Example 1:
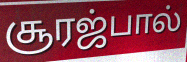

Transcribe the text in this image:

சூரஜ்பால்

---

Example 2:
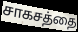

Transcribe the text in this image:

சாகசத்தை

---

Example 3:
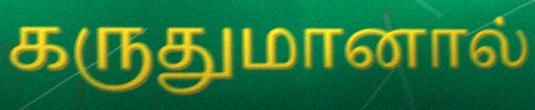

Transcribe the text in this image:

கருதுமானால்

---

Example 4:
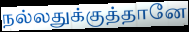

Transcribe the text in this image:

நல்லதுக்குத்தானே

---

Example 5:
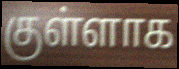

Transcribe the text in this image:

குள்ளாக